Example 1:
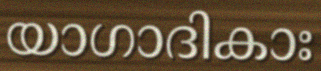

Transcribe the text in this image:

യാഗാദികാഃ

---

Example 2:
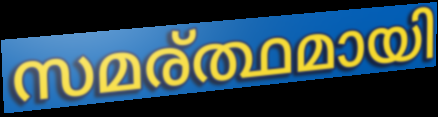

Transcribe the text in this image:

സമര്ത്ഥമായി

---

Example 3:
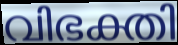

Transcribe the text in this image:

വിഭക്തി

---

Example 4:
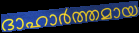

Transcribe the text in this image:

ദാഹാർത്തമായ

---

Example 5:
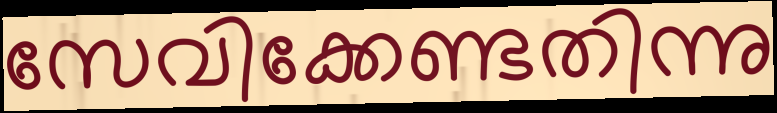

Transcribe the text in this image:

സേവിക്കേണ്ടതിന്നു